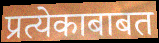
प्रत्येकाबाबत